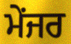
ਮੇਂਜਰ